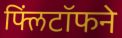
फ्लिंटॉफने